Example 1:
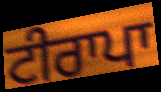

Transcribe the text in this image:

ਟੀਰਾਪਾ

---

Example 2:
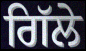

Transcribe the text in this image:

ਗਿੱਲੇ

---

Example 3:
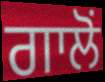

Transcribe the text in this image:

ਗਾਲੋਂ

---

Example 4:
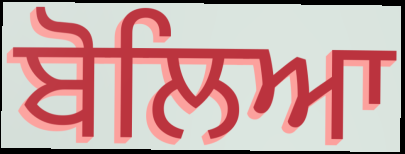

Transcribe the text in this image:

ਬੋਲਿਆ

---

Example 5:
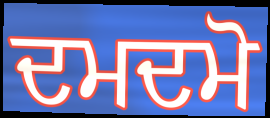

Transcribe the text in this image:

ਦਮਦਮੋ